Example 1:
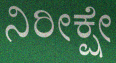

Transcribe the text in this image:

ನಿರೀಕ್ಷೇ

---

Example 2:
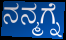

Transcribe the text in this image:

ನನ್ಮಗ್ನೆ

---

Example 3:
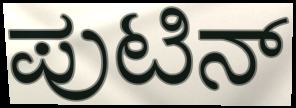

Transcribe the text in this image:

ಪುಟಿನ್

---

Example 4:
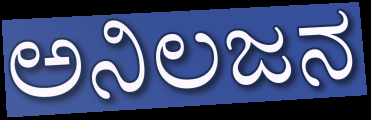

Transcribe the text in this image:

ಅನಿಲಜನ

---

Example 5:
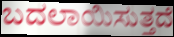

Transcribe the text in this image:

ಬದಲಾಯಿಸುತ್ತದೆ